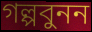
গল্পবুনন